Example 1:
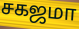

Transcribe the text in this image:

சகஜமா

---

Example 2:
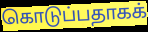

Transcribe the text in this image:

கொடுப்பதாகக்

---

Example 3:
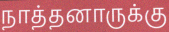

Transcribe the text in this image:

நாத்தனாருக்கு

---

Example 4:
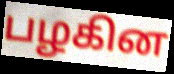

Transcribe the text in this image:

பழகின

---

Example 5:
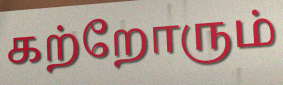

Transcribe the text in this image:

கற்றோரும்